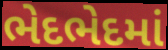
ભેદભેદમાં